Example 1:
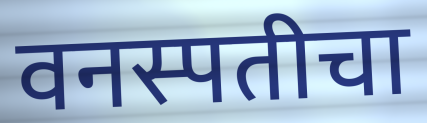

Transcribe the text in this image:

वनस्पतीचा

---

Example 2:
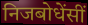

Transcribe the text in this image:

निजबोधेंसीं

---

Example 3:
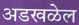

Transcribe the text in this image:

अडखळेल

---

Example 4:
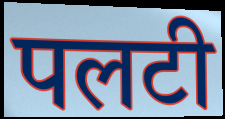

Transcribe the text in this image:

पलटी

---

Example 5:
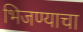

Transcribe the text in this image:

भिजण्याचा